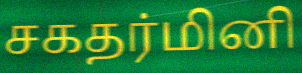
சகதர்மினி